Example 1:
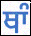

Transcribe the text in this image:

ਥਾੰ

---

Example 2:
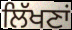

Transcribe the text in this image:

ਲਿੱਖਣਾਂ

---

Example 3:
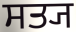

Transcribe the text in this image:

ਸਤ੍ਯ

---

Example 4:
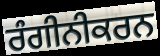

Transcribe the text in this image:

ਰੰਗੀਨੀਕਰਨ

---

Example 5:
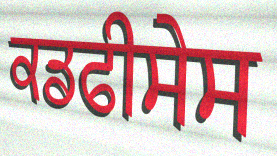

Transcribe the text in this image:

ਕਡਫੀਸੇਸ